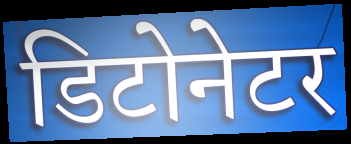
डिटोनेटर